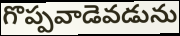
గొప్పవాడెవడును